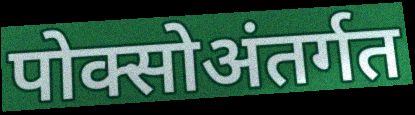
पोक्सोअंतर्गत